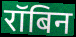
रॉबिन